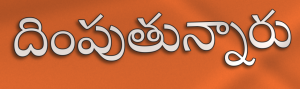
దింపుతున్నారు